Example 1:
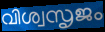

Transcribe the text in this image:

വിശ്വസൃജം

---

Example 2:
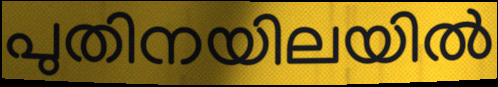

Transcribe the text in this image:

പുതിനയിലയിൽ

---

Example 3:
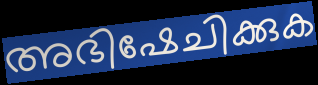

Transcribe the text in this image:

അഭിഷേചിക്കുക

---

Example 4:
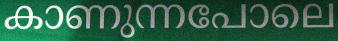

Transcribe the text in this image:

കാണുന്നപോലെ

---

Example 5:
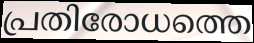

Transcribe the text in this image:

പ്രതിരോധത്തെ